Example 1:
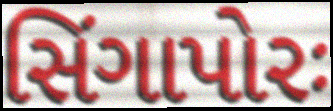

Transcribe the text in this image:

સિંગાપોરઃ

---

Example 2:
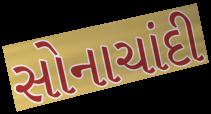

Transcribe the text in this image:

સોનાચાંદી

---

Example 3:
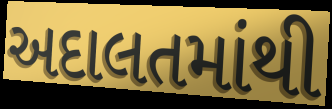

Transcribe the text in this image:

અદાલતમાંથી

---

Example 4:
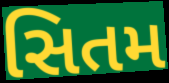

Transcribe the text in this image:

સિતમ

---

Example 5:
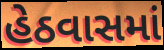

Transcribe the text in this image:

હેઠવાસમાં